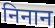
निनान